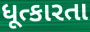
ધૂત્કારતા